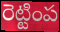
రెట్టింప